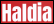
Haldia